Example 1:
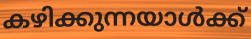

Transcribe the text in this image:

കഴിക്കുന്നയാൾക്ക്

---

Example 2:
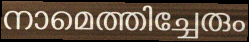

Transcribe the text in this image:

നാമെത്തിച്ചേരും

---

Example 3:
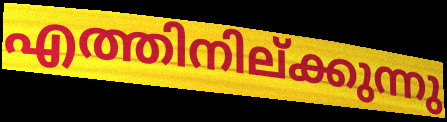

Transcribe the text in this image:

എത്തിനില്ക്കുന്നു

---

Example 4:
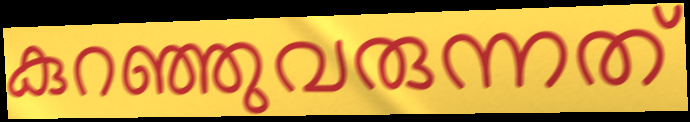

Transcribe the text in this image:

കുറഞ്ഞുവരുന്നത്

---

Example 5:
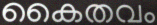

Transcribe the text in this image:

കൈതവം